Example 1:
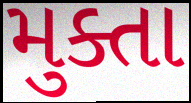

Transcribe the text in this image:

મુક્તા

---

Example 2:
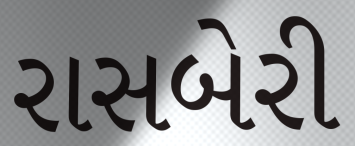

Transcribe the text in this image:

રાસબેરી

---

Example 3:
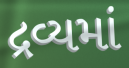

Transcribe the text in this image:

દ્રવ્યમાં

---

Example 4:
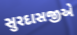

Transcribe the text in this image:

સુરદાસજીએ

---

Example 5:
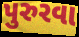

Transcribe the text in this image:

પુરુરવા